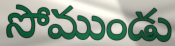
సోముండు